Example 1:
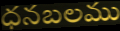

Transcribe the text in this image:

ధనబలము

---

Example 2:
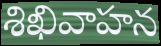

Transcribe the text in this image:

శిఖివాహన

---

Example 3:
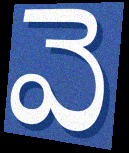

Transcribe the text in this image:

వె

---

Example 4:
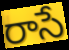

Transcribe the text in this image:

రాసే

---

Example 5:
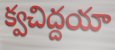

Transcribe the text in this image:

క్వచిద్దయా